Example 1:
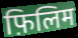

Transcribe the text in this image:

फ़िलिम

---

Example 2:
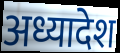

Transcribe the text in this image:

अध्यादेश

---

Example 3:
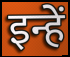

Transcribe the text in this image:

इन्हें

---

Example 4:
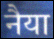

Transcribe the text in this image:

नैया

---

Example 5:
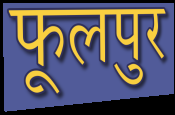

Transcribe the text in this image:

फूलपुर